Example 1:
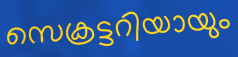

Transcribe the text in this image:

സെക്രട്ടറിയായും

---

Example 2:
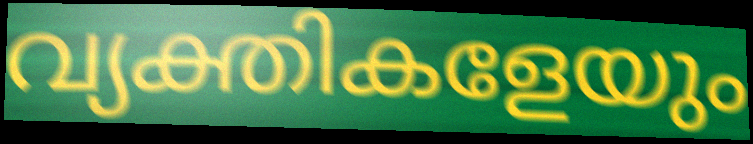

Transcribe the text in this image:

വ്യക്തികളേയും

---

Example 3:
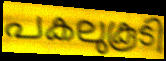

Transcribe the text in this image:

പകലുകൂടി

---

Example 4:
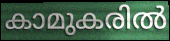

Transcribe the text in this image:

കാമുകരിൽ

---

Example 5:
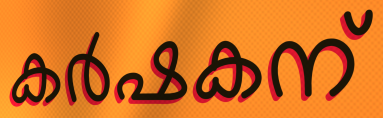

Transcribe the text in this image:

കർഷകന്